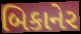
બિકાનેર